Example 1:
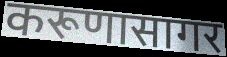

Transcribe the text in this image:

करूणासागर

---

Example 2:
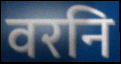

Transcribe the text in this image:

वरनि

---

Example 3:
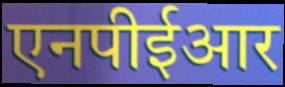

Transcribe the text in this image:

एनपीईआर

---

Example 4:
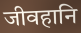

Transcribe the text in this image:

जीवहानि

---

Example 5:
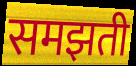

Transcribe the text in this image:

समझती